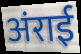
अंराई